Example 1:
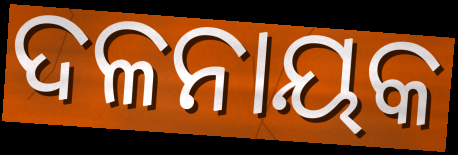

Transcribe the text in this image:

ଦଳନାୟକ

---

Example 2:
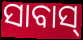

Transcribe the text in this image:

ସାବାସ୍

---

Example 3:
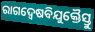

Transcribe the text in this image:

ରାଗଦ୍ୱେଷବିଯୁକ୍ତୈସ୍ତୁ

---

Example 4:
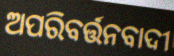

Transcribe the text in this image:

ଅପରିବର୍ତ୍ତନବାଦୀ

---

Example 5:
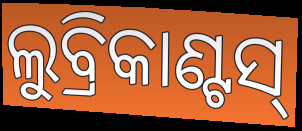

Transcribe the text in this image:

ଲୁବ୍ରିକାଣ୍ଟସ୍